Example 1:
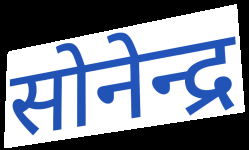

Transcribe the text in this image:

सोनेन्द्र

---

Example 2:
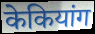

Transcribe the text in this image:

केकियांग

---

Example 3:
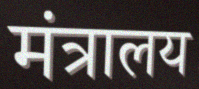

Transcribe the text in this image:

मंत्रालय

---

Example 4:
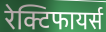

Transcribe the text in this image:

रेक्टिफायर्स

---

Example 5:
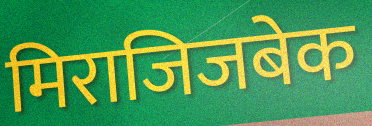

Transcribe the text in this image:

मिराजिजबेक